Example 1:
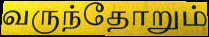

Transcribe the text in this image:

வருந்தோறும்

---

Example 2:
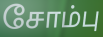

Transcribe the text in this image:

சோம்பு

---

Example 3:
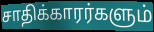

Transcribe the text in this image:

சாதிக்காரர்களும்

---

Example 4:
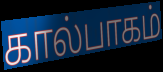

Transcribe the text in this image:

கால்பாகம்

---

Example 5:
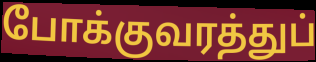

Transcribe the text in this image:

போக்குவரத்துப்